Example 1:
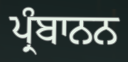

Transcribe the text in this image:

ਪ੍ਰੰਬਾਨਨ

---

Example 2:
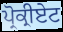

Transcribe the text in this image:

ਪ੍ਰੋਕ੍ਰੀਏਟ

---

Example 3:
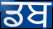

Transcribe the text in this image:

ਡਬ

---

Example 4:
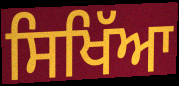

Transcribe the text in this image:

ਸਿਖਿੱਆ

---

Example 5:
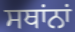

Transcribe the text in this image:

ਸਥਾਂਨਾਂ